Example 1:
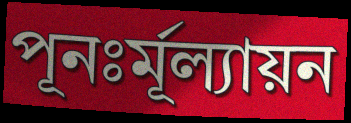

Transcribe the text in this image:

পূনঃর্মূল্যায়ন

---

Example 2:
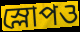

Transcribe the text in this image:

স্লোপও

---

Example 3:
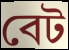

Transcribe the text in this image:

বেট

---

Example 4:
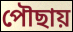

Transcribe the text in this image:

পৌছায়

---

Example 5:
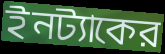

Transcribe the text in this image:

ইনট্যাকের